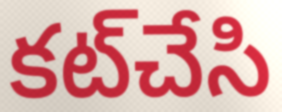
కట్‌చేసి